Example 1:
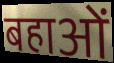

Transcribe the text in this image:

बहाओं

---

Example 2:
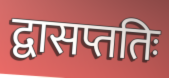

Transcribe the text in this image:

द्वासप्ततिः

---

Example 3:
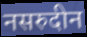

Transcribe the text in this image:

नसरुदीन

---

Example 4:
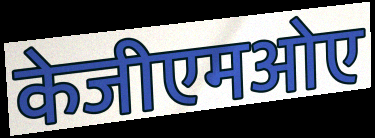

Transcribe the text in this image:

केजीएमओए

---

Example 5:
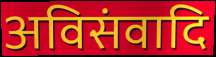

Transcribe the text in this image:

अविसंवादि